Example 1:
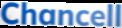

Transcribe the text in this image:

Chancell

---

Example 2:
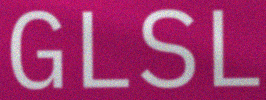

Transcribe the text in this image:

GLSL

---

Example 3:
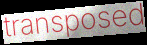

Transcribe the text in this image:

transposed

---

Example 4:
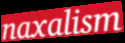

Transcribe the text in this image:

naxalism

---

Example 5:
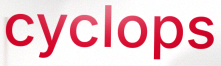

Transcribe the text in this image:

cyclops